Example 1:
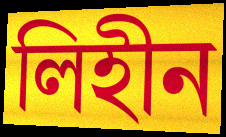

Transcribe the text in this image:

লিহীন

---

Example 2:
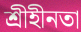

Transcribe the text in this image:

শ্রীহীনতা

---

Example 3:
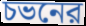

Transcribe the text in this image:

চভনের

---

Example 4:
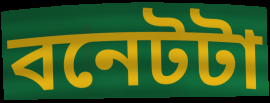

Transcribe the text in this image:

বনেটটা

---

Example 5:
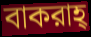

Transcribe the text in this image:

বাকরাহ্